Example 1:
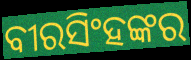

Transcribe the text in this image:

ବୀରସିଂହଙ୍କର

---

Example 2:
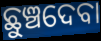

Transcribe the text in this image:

ଛୁଞ୍ଚଦେବା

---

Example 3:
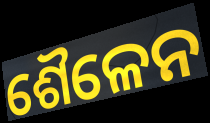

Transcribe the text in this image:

ଶୈଳେନ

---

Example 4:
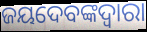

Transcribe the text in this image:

ଜୟଦେବଙ୍କଦ୍ୱାରା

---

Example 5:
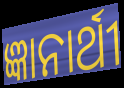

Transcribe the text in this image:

ଜ୍ଞାନାର୍ଥୀ